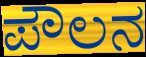
ಪೌಲನ